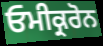
ਓਮੀਕ੍ਰਰੋਨ